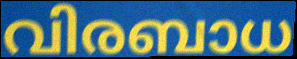
വിരബാധ